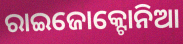
ରାଇଜୋକ୍ଟୋନିଆ